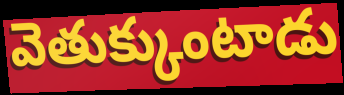
వెతుక్కుంటాడు